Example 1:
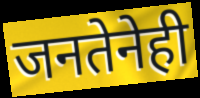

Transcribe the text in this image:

जनतेनेही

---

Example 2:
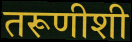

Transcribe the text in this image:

तरूणीशी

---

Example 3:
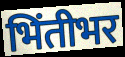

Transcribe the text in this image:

भिंतीभर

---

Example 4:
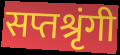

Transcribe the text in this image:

सप्तश्रृंगी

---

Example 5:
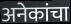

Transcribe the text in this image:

अनेकांचा